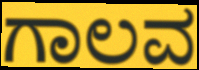
ಗಾಲವ